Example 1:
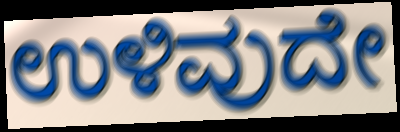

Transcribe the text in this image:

ಉಳಿವುದೇ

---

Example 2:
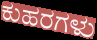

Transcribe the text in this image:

ಕುಹರಗಳು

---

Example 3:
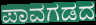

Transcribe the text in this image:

ಪಾವಗಡದ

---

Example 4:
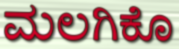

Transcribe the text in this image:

ಮಲಗಿಕೊ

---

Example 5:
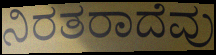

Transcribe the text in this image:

ನಿರತರಾದೆವು